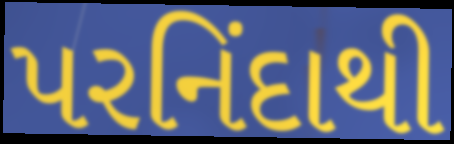
પરનિંદાથી